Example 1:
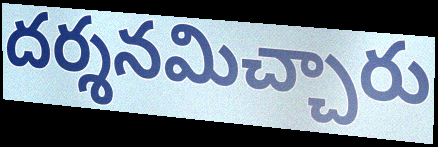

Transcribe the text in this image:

దర్శనమిచ్చారు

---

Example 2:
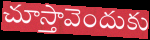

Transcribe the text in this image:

చూస్తావెందుకు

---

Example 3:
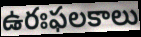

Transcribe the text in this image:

ఉరఃఫలకాలు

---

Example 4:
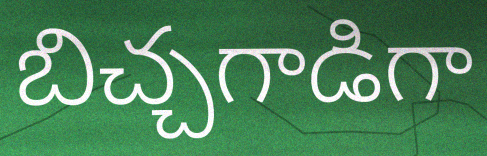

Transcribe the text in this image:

బిచ్చగాడిగా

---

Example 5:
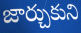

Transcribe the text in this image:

జార్చుకుని